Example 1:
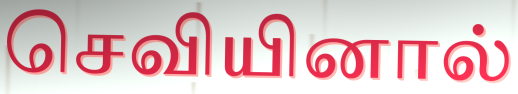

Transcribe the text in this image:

செவியினால்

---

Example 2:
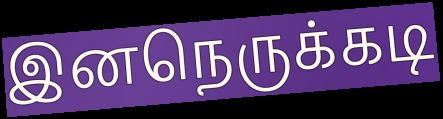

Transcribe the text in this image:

இனநெருக்கடி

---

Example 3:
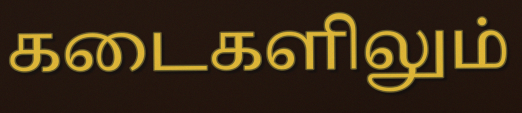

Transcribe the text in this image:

கடைகளிலும்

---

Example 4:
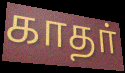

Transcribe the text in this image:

காதர்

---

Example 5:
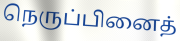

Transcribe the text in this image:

நெருப்பினைத்